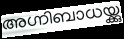
അഗ്നിബാധയ്ക്കു